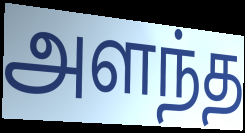
அளந்த